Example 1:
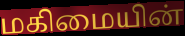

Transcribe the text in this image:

மகிமையின்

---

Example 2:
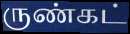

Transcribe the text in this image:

ருண்கட்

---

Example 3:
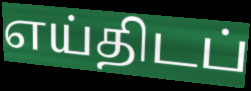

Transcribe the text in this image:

எய்திடப்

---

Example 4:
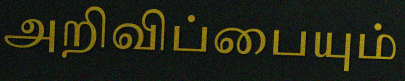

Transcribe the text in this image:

அறிவிப்பையும்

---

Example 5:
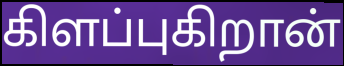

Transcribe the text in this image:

கிளப்புகிறான்